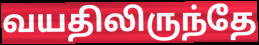
வயதிலிருந்தே